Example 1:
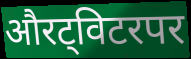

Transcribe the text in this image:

औरट्विटरपर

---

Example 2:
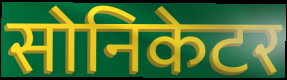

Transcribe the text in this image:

सोनिकेटर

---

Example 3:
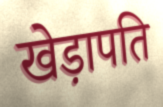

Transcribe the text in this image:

खेड़ापति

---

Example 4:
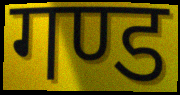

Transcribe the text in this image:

गण्ड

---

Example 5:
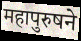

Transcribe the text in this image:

महापुरुषने